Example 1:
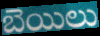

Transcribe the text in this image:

బెయిలు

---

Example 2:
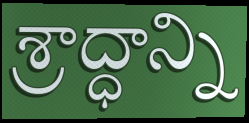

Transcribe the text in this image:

శ్రాద్ధాన్ని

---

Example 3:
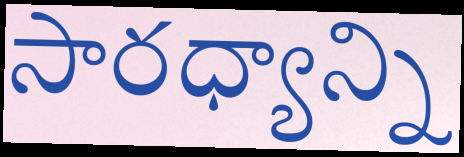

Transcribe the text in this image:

సారధ్యాన్ని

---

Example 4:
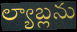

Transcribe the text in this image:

ల్యాబ్లను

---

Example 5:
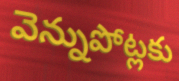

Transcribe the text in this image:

వెన్నుపోట్లకు